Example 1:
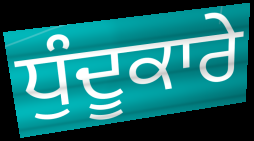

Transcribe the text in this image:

ਧੁੰਦੂਕਾਰੇ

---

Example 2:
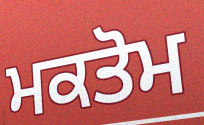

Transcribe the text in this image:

ਮਕਤੋਮ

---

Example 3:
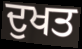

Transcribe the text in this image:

ਦੁਖਤ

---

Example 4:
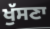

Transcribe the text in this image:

ਖੁੱਸਣਾ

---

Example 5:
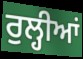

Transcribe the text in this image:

ਰੁਲ੍ਹੀਆਂ